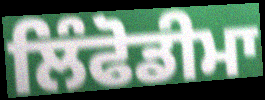
ਲਿੰਫੋਡੀਮਾ